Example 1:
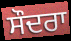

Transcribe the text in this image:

ਸੌਦਰਾ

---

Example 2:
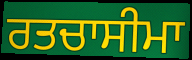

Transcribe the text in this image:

ਰਤਚਾਸੀਮਾ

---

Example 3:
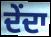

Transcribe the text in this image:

ਦੇਂਦਾ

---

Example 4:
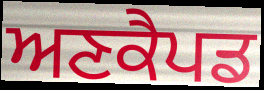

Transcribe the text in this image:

ਅਣਕੈਪਡ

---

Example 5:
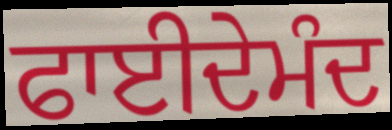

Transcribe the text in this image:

ਫਾਈਦੇਮੰਦ